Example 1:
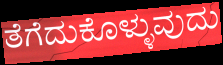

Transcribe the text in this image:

ತೆಗೆದುಕೊಳ್ಳುವುದು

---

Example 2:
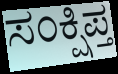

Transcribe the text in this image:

ಸಂಕ್ಷಿಪ್ತ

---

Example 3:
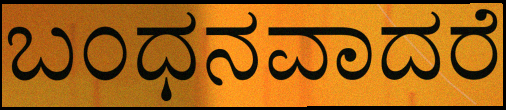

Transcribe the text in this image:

ಬಂಧನವಾದರೆ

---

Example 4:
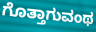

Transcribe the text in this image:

ಗೊತ್ತಾಗುವಂಥ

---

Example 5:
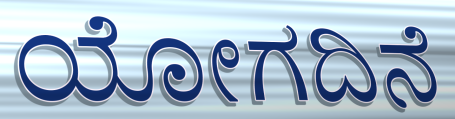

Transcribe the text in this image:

ಯೋಗದಿನೆ